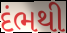
દંભથી